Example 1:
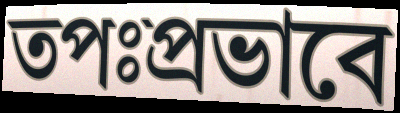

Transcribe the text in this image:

তপঃপ্রভাবে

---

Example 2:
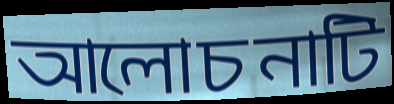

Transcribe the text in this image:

আলোচনাটি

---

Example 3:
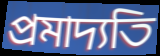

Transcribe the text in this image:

প্রমাদ্যতি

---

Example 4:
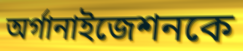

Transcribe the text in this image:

অর্গানাইজেশনকে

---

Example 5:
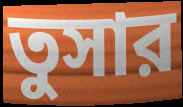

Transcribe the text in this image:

তুসার